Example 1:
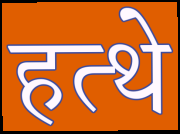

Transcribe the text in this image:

हत्थे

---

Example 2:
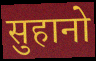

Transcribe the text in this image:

सुहानो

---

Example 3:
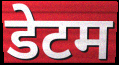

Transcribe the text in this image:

डेटम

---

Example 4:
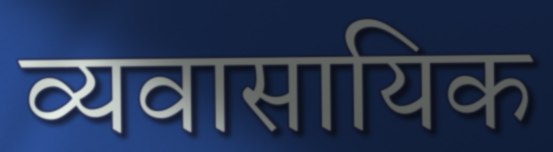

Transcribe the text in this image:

व्यवासायिक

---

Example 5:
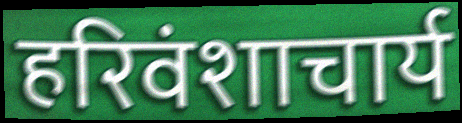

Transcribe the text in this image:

हरिवंशाचार्य